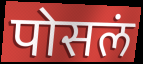
पोसलं